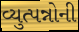
વ્યુત્પન્નોની